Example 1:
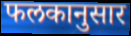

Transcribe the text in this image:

फलकानुसार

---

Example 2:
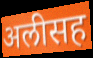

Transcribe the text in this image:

अलीसह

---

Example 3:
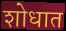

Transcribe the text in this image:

शोधात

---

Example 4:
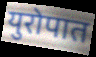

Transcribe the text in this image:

युरोपात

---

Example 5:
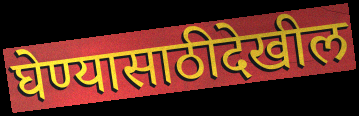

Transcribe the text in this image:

घेण्यासाठीदेखील